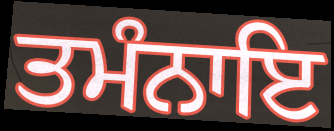
ਤਮੰਨਾਇ